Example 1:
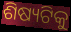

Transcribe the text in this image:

ଶିଷ୍ୟଟିକୁ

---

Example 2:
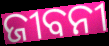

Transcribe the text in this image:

ଜୀବନୀ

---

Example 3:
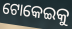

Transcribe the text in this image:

ଟୋକେଇକୁ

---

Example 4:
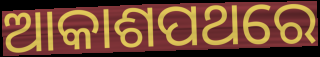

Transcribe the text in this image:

ଆକାଶପଥରେ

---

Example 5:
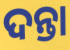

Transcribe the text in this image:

ଦନ୍ତା